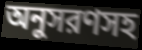
অনুসরণসহ